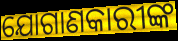
ଯୋଗାଣକାରୀଙ୍କ